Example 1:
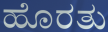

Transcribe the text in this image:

ಹೊರತು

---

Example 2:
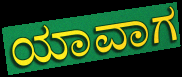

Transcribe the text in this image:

ಯಾವಾಗ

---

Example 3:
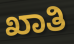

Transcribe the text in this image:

ಖಾತಿ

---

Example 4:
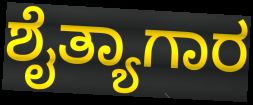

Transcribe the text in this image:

ಶೈತ್ಯಾಗಾರ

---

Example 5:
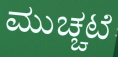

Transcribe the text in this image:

ಮುಚ್ಚಟೆ